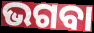
ଭଗବା